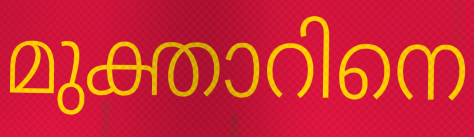
മുക്താറിനെ